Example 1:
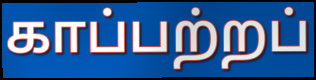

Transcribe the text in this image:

காப்பற்றப்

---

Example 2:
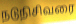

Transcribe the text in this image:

நடுநிசிவரை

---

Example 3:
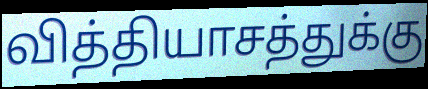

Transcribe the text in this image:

வித்தியாசத்துக்கு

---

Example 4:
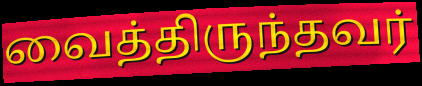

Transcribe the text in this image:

வைத்திருந்தவர்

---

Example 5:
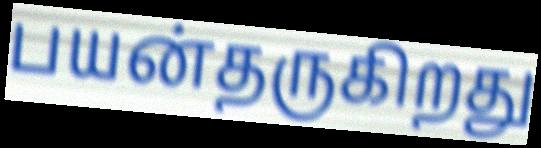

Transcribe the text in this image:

பயன்தருகிறது